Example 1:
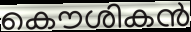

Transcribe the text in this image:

കൌശികൻ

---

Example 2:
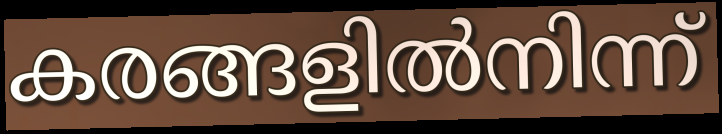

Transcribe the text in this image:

കരങ്ങളിൽനിന്ന്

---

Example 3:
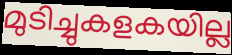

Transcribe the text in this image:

മുടിച്ചുകളകയില്ല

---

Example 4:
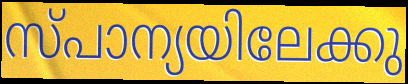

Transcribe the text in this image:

സ്പാന്യയിലേക്കു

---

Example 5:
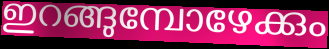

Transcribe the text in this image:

ഇറങ്ങുമ്പോഴേക്കും